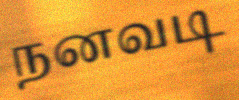
நனவடி